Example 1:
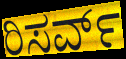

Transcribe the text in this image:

ರಿಸರ್ವ್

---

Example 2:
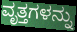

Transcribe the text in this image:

ವೃತ್ತಗಳನ್ನು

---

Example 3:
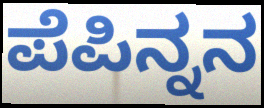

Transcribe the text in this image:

ಪೆಪಿನ್ನನ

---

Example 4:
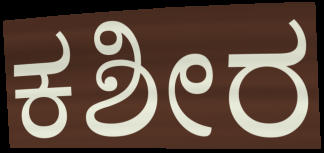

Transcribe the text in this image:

ಕಶೀರ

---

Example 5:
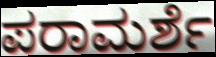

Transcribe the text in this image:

ಪರಾಮರ್ಶೆ